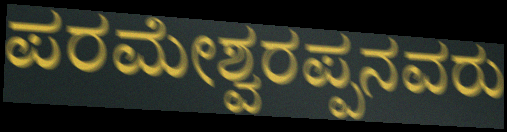
ಪರಮೇಶ್ವರಪ್ಪನವರು